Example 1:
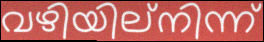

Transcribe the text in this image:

വഴിയില്നിന്ന്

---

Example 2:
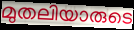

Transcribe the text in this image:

മുതലിയാരുടെ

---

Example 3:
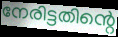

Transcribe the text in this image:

നേരിട്ടതിന്റെ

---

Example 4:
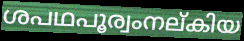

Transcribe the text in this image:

ശപഥപൂര്വംനല്കിയ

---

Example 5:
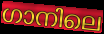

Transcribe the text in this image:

ഗാനിലെ